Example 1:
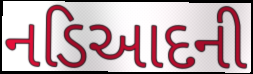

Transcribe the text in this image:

નડિઆદની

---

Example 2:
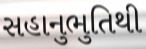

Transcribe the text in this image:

સહાનુભુતિથી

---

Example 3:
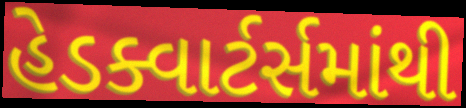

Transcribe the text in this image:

હેડક્વાર્ટર્સમાંથી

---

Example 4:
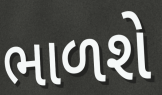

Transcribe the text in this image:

ભાળશે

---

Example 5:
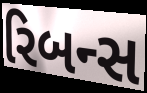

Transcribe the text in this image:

રિબન્સ